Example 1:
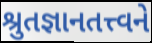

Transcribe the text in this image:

શ્રુતજ્ઞાનતત્ત્વને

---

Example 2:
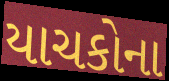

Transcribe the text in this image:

યાચકોના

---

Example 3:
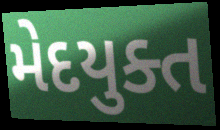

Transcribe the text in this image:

મેદયુક્ત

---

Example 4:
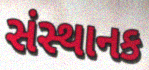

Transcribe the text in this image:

સંસ્થાનક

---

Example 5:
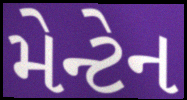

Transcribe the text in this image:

મેન્ટેન